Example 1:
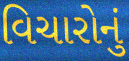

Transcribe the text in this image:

વિચારોનું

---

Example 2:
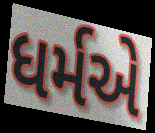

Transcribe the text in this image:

ધર્મએ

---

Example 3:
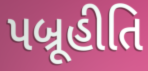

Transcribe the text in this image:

પબ્રૂહીતિ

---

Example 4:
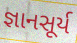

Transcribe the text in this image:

જ્ઞાનસૂર્ય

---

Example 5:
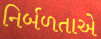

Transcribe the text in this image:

નિર્બળતાએ